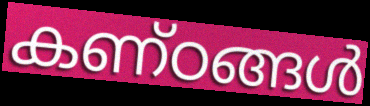
കണ്ഠങ്ങൾ